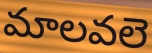
మాలవలె